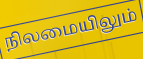
நிலமையிலும்